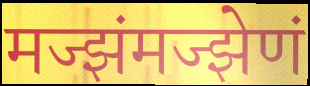
मज्झंमज्झेणं